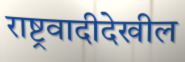
राष्ट्रवादीदेखील